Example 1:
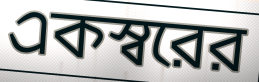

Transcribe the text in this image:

একস্বরের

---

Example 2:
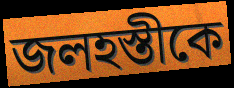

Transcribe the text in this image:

জলহস্তীকে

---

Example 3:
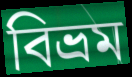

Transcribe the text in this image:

বিভ্রম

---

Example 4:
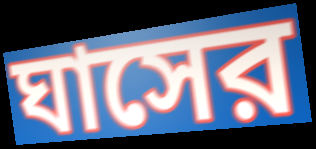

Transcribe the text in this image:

ঘাসের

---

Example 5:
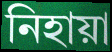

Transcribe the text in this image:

নিহায়া